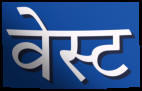
वेस्ट